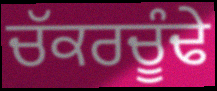
ਚੱਕਰਚੂੰਢੇ